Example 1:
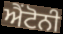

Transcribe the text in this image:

ਐਂਟੋਨੀ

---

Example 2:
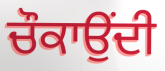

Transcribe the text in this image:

ਚੌਕਾਉਂਦੀ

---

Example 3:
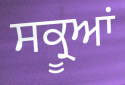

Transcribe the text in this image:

ਸਕ੍ਰੂਆਂ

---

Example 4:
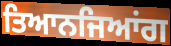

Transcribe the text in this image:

ਤਿਆਨਜਿਆਂਗ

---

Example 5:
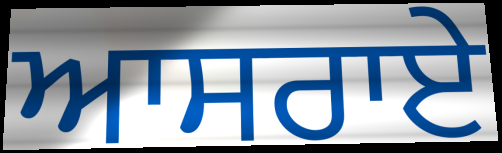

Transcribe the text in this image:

ਆਸਰਾਏ